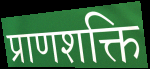
प्राणशक्ति